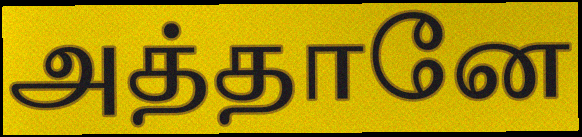
அத்தானே